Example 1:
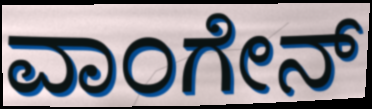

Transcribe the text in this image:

ವಾಂಗೇನ್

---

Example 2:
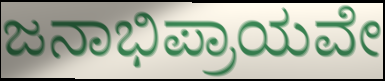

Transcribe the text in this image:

ಜನಾಭಿಪ್ರಾಯವೇ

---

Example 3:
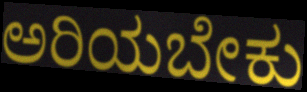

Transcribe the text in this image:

ಅರಿಯಬೇಕು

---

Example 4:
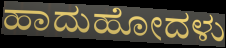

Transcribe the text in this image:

ಹಾದುಹೋದಳು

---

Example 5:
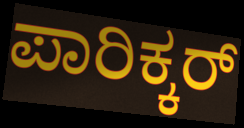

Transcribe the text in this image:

ಪಾರಿಕ್ಕರ್